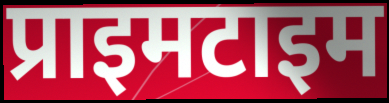
प्राइमटाइम